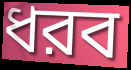
ধরব